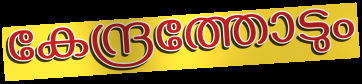
കേന്ദ്രത്തോടും